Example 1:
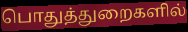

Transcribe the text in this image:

பொதுத்துறைகளில்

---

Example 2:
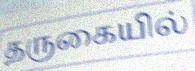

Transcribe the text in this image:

தருகையில்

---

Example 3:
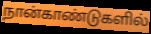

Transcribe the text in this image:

நான்காண்டுகளில்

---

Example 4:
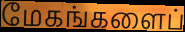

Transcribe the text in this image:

மேகங்களைப்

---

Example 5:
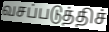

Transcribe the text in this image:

வசப்படுத்திச்